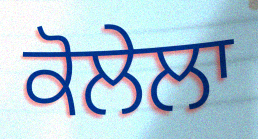
ਕੋਲੇਲਾ